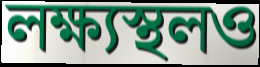
লক্ষ্যস্থলও